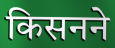
किसनने